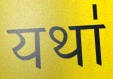
यथा॑